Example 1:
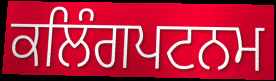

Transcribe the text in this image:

ਕਲਿੰਗਪਟਨਮ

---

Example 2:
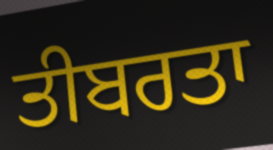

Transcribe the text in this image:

ਤੀਬਰਤਾ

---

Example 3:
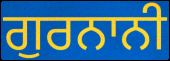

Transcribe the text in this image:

ਗੁਰਨਾਨੀ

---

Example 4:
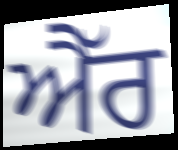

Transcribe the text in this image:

ਐੱਰ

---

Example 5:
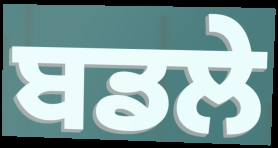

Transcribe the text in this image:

ਬਡਲੇ